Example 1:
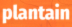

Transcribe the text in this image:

plantain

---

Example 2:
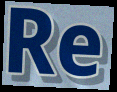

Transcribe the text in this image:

Re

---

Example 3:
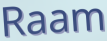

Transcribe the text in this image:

Raam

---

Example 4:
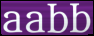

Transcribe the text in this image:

aabb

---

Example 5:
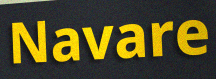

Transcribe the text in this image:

Navare